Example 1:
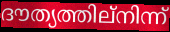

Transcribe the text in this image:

ദൗത്യത്തില്നിന്ന്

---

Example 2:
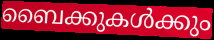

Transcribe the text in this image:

ബൈക്കുകൾക്കും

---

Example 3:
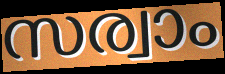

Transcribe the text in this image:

സര്വാം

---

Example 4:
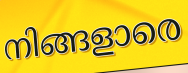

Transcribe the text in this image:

നിങ്ങളാരെ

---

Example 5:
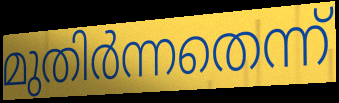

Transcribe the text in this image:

മുതിർന്നതെന്ന്